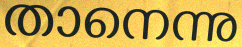
താനെന്നു